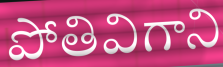
పోతివిగాని